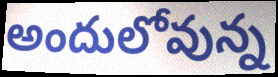
అందులోవున్న